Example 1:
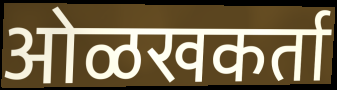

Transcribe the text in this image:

ओळखकर्ता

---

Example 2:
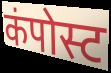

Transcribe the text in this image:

कंपोस्ट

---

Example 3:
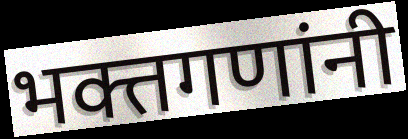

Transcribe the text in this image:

भक्तगणांनी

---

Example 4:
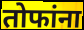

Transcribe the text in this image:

तोफांना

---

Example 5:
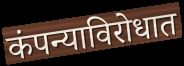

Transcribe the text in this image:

कंपन्याविरोधात